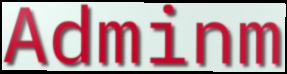
Adminm